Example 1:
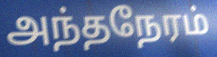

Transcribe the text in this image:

அந்தநேரம்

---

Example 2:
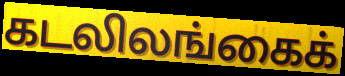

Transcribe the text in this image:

கடலிலங்கைக்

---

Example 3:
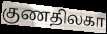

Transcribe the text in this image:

குணதிலகா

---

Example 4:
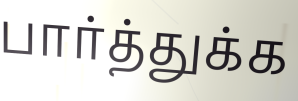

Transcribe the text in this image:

பார்த்துக்க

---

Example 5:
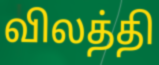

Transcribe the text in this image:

விலத்தி